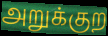
அறுக்குற